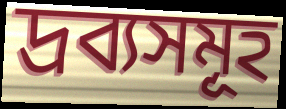
দ্ৰব্যসমূহ